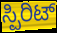
ಸ್ಪಿರಿಟ್